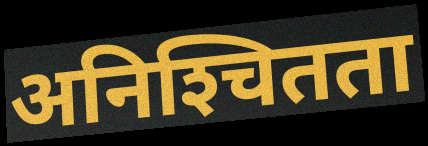
अनिश्‍चितता